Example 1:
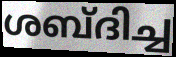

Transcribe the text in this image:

ശബ്ദിച്ച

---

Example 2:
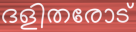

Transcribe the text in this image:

ദളിതരോട്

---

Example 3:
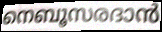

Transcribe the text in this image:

നെബൂസരദാൻ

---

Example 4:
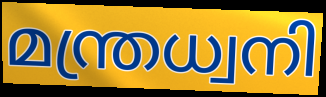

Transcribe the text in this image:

മന്ത്രധ്വനി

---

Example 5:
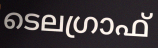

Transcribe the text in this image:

ടെലഗ്രാഫ്